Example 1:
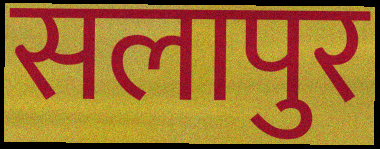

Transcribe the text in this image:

सलापुर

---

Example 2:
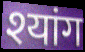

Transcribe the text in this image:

श्यांग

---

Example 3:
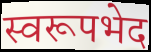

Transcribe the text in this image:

स्वरूपभेद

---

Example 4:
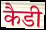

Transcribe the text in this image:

कैडी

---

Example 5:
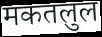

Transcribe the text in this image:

मकतलुल